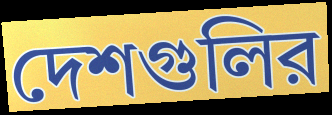
দেশগুলির